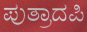
ಪುತ್ರಾದಪಿ